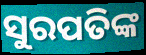
ସୁରପତିଙ୍କ